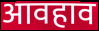
आवहाव